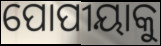
ପୋପୀୟାକୁ